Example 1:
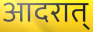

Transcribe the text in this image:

आदरात्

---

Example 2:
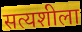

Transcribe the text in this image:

सत्यशीला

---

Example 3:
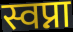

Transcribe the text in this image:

स्वप्ना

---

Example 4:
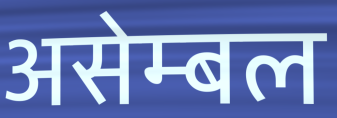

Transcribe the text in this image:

असेम्बल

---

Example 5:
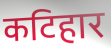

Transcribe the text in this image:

कटिहार